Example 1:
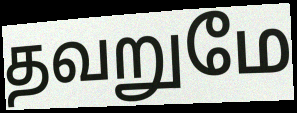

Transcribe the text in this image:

தவறுமே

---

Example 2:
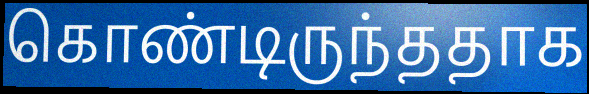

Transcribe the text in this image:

கொண்டிருந்ததாக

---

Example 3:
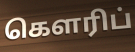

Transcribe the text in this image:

கௌரிப்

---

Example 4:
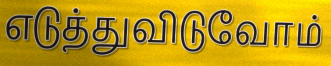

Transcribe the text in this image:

எடுத்துவிடுவோம்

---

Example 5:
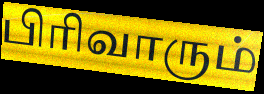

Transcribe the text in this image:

பிரிவாரும்